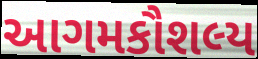
આગમકૌશલ્ય